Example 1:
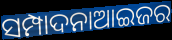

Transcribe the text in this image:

ସମ୍ପାଦନାଆଇଜର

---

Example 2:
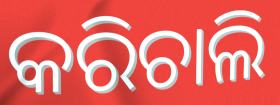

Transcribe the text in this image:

କରିଚାଲି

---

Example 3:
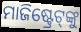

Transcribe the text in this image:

ମାଜିଷ୍ଟ୍ରେଟ୍‌ଙ୍କୁ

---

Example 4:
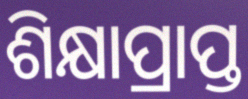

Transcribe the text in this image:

ଶିକ୍ଷାପ୍ରାପ୍ତ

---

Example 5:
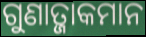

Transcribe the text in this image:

ଗୁଣାତ୍ଜାକମାନ